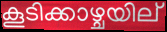
കൂടിക്കാഴ്ചയില്